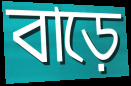
বাড়ে